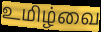
உமிழ்வை